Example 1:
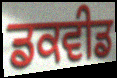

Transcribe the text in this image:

ਡਕਵੀਡ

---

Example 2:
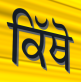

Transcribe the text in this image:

ਕਿੱਥੋ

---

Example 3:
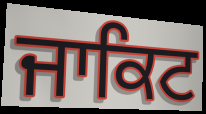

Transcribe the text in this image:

ਜਾਕਿਟ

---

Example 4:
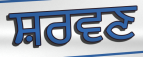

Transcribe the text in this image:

ਸ਼ਰਵਣ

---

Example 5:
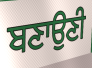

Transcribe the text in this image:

ਬਣਾਉਣੀ